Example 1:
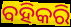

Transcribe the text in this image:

ବହିକରି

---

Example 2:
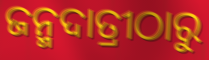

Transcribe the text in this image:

ଜନ୍ମଦାତ୍ରୀଠାରୁ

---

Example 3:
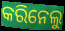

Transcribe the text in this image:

କରିନେଲୁ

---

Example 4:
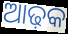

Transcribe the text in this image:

ଆଢ଼କ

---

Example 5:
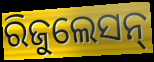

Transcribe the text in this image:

ରିଜୁଲେସନ୍